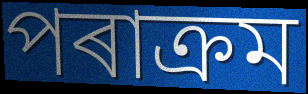
পৰাক্ৰম